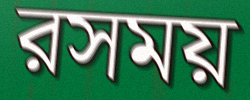
রসময়